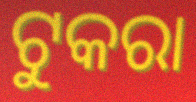
ଟୁକରା